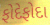
ફોદેફોદા